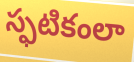
స్ఫటికంలా